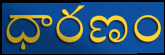
ధారణం